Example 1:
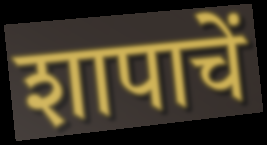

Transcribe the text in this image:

शापाचें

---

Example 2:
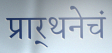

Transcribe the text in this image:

प्रार्थनेचं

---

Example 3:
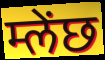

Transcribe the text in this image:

म्लेंछ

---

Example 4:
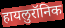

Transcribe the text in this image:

हायलुरॉनिक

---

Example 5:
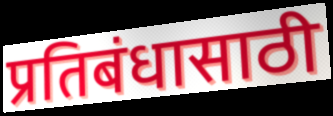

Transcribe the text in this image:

प्रतिबंधासाठी